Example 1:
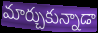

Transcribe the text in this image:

మార్చుకున్నాడా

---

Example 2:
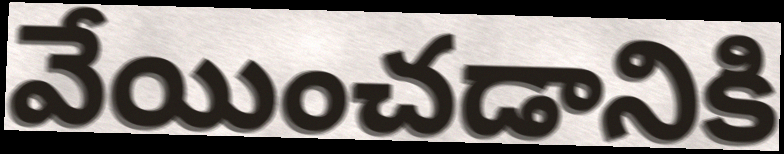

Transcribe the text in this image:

వేయించడానికి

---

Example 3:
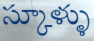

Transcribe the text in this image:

స్కూళ్ళు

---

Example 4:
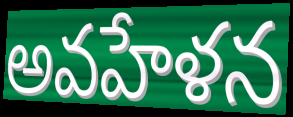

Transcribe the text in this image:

అవహేళన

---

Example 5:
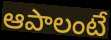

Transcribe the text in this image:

ఆపాలంటే